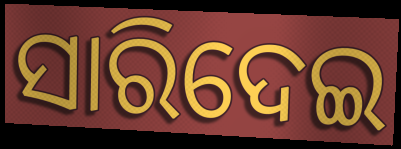
ସାରିଦେଇ